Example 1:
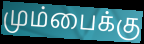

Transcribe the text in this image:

மும்பைக்கு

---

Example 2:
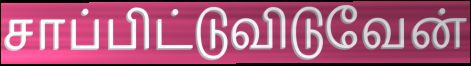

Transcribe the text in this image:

சாப்பிட்டுவிடுவேன்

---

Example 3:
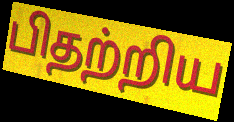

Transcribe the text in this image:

பிதற்றிய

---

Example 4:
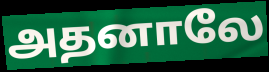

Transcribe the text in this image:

அதனாலே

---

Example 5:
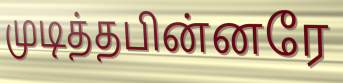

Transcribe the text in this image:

முடித்தபின்னரே